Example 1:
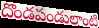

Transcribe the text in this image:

దొండపండులాంటి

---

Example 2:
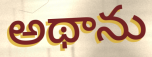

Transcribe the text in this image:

అథాను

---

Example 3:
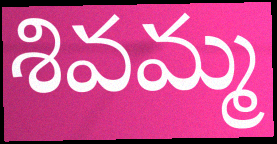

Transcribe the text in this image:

శివమ్మ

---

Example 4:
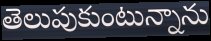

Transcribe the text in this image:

తెలుపుకుంటున్నాను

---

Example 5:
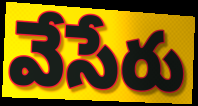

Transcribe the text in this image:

వేసేరు